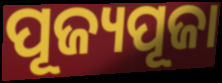
ପୂଜ୍ୟପୂଜା